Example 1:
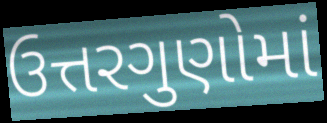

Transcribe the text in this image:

ઉત્તરગુણોમાં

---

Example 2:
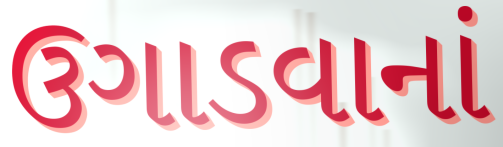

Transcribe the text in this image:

ઉગાડવાનાં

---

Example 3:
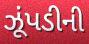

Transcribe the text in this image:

ઝૂંપડીની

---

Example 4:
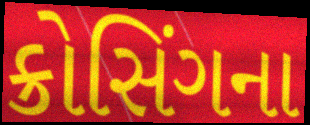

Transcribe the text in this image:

ક્રોસિંગના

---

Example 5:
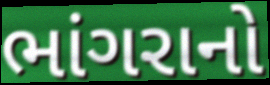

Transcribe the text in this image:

ભાંગરાનો